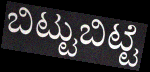
ಬಿಟ್ಟುಬಿಟ್ಟೆ